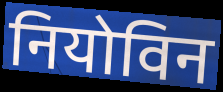
नियोविन